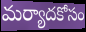
మర్యాదకోసం